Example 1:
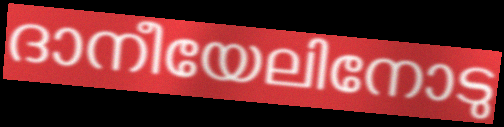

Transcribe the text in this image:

ദാനീയേലിനോടു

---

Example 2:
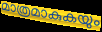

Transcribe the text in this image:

മാത്രമാകുകയും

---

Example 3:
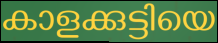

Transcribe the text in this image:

കാളക്കുട്ടിയെ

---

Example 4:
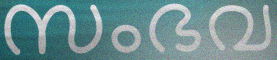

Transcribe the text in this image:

സംഭവ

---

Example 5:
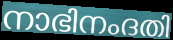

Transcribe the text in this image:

നാഭിനംദതി